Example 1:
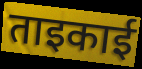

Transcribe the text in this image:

ताइकाई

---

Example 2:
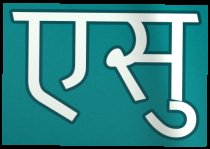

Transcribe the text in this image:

एसु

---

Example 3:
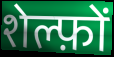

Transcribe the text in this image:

शेल्फ़ों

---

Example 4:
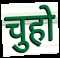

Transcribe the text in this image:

चुहो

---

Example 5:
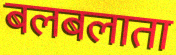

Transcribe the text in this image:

बलबलाता